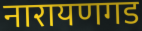
नारायणगड